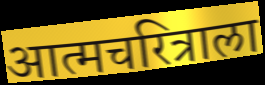
आत्मचरित्राला